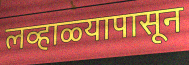
लव्हाळ्यापासून